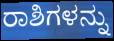
ರಾಶಿಗಳನ್ನು